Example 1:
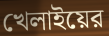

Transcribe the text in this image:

খেলাইয়ের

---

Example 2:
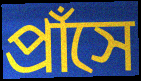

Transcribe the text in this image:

প্রাঁসে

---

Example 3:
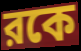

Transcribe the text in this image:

রকে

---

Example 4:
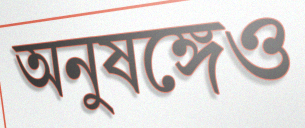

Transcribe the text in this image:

অনুষঙ্গেও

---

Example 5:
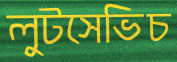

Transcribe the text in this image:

লুটসেভিচ